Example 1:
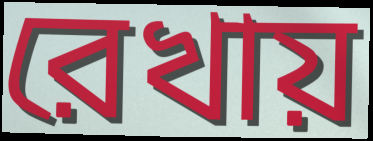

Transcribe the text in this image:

রেখায়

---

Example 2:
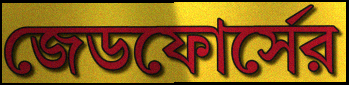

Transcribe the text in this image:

জেডফোর্সের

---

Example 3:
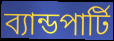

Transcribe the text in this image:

ব্যান্ডপার্টি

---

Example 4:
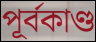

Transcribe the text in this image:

পূর্বকাণ্ড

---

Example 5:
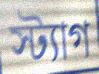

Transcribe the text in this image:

স্ট্যাগ